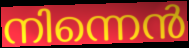
നിന്നെൻ